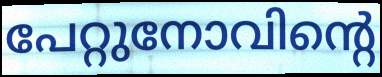
പേറ്റുനോവിന്റെ